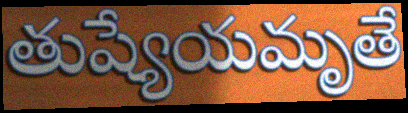
తుష్యేయమృతే